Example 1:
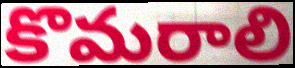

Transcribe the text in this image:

కొమరాలి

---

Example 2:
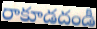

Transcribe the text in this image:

రాకూడదండీ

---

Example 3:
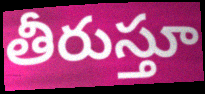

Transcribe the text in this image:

తీరుస్తూ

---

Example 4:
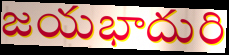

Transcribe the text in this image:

జయభాదురి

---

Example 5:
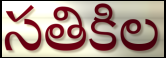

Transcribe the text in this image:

సతికిల